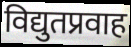
विद्युतप्रवाह